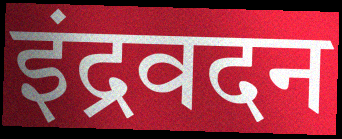
इंद्रवदन